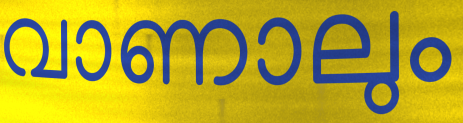
വാണാലും